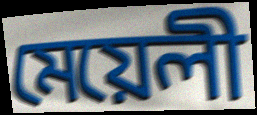
মেয়েলী